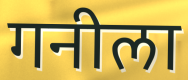
गनीला